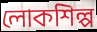
লোকশিল্প